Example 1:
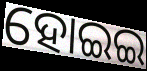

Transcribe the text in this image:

ହୋଇଇ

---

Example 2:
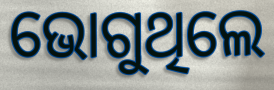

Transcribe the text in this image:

ଭୋଗୁଥିଲେ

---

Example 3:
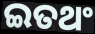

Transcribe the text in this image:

ଇତଥଂ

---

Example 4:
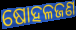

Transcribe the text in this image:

ଷୋହଳଜଣ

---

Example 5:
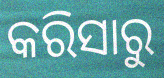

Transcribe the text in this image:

କରିସାରୁ